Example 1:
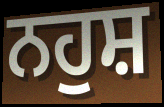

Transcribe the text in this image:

ਨਹੁਸ਼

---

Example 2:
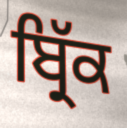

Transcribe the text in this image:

ਬ੍ਰਿੱਕ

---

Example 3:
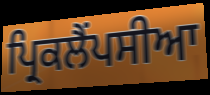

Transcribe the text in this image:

ਪ੍ਰਿਕਲੈਂਪਸੀਆ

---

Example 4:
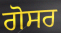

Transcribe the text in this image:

ਗੋਸਰ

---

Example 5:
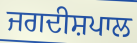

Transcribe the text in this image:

ਜਗਦੀਸ਼ਪਾਲ